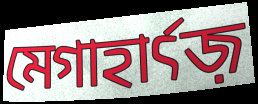
মেগাহার্ৎজ়